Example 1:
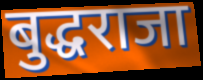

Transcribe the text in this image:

बुद्धराजा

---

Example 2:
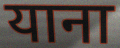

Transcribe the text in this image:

याना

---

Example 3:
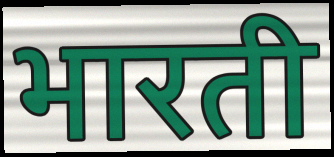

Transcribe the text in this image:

भारती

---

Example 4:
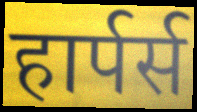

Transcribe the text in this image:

हार्पर्स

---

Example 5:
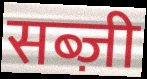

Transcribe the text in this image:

सब्ज़ी